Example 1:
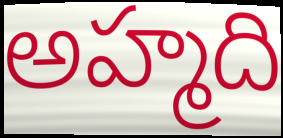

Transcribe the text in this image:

అహ్మది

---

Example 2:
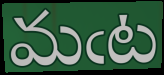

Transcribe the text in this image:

మఁట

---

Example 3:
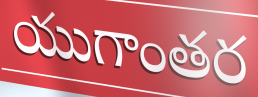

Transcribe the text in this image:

యుగాంతర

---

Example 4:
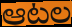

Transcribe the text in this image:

ఆటల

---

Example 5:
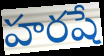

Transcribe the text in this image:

హరషే